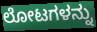
ಲೋಟಗಳನ್ನು